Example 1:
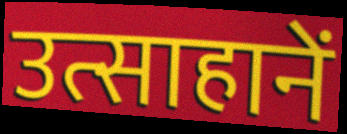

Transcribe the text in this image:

उत्साहानें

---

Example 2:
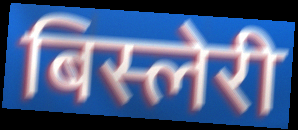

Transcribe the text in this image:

बिस्लेरी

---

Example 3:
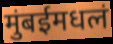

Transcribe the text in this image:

मुंबईमधलं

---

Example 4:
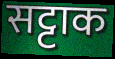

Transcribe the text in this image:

सट्टाक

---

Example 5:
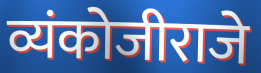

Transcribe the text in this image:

व्यंकोजीराजे